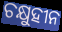
ଚକ୍ଷୁହୀନ